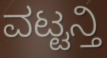
ವಟ್ಟನ್ತಿ